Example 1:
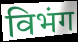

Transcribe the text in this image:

विभंग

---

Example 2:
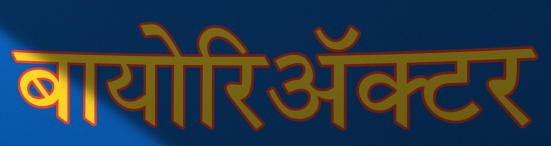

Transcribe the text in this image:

बायोरिॲक्टर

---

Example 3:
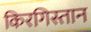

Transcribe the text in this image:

किरगिस्तान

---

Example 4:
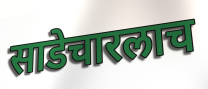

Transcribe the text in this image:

साडेचारलाच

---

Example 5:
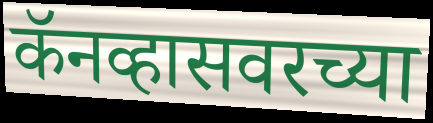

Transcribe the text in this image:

कॅनव्हासवरच्या